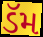
ડૅમ